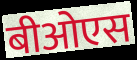
बीओएस